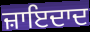
ਜ਼ਾਇਦਾਦ